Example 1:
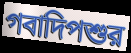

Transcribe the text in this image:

গবাদিপশুর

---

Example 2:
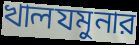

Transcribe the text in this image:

খালযমুনার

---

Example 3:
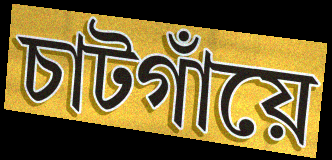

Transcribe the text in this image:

চাটগাঁয়ে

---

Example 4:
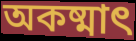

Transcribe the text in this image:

অকষ্মাৎ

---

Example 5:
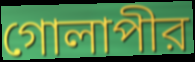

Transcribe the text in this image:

গোলাপীর